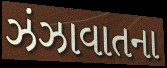
ઝંઝાવાતના